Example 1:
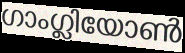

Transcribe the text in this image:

ഗാംഗ്ലിയോൺ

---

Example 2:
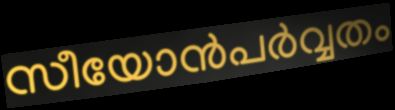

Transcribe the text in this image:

സീയോൻപർവ്വതം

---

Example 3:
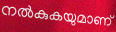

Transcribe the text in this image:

നൽകുകയുമാണ്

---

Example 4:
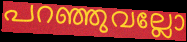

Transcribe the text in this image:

പറഞ്ഞുവല്ലോ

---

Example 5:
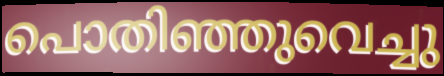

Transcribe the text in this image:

പൊതിഞ്ഞുവെച്ചു